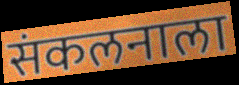
संकलनाला